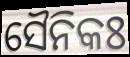
ସୈନିକଃ